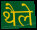
थैले